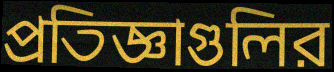
প্রতিজ্ঞাগুলির